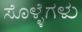
ಸೊಳ್ಳೆಗಳು